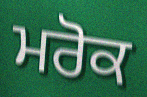
ਮਰੋਕ